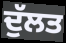
ਦੁੱਲਤ